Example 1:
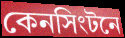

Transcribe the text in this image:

কেনসিংটনে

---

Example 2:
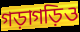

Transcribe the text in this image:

গড়াগড়িও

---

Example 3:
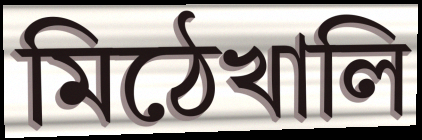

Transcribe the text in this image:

মিঠেখালি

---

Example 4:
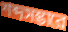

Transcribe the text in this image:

শব্দসম্ভারে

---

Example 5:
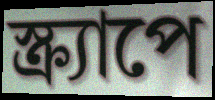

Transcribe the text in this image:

স্ক্র্যাপে